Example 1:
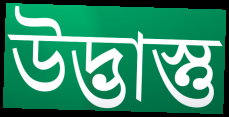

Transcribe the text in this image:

উদ্ভাস্তু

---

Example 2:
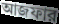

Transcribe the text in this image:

আজফার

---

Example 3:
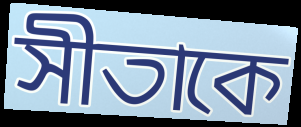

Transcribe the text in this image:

সীতাকে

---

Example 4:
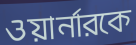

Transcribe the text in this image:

ওয়ার্নারকে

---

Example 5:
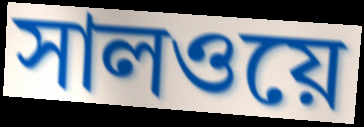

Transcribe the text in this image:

সালওয়ে